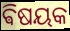
ଵିଷୟକ